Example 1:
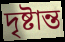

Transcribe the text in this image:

দৃষ্টান্ত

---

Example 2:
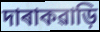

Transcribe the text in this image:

দাৰাকৱাড়ি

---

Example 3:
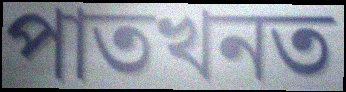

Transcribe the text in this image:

পাতখনত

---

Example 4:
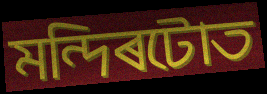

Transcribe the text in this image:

মন্দিৰটোত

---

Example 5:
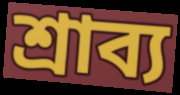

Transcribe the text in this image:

শ্ৰাব্য